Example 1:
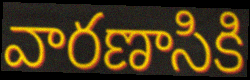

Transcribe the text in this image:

వారణాసికి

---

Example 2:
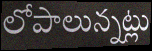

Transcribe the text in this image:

లోపాలున్నట్లు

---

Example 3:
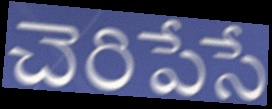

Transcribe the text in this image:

చెరిపేసే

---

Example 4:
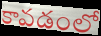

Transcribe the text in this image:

కావడంలో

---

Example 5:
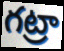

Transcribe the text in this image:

గట్రా